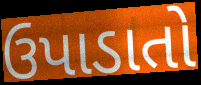
ઉપાડાતો